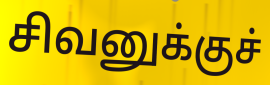
சிவனுக்குச்